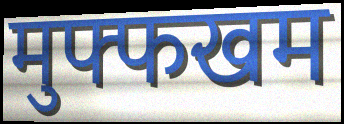
मुफ्फखम